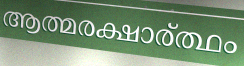
ആത്മരക്ഷാര്ത്ഥം